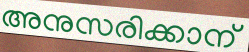
അനുസരിക്കാന്